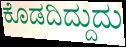
ಕೊಡದಿದ್ದುದು